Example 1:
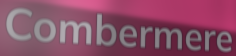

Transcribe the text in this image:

Combermere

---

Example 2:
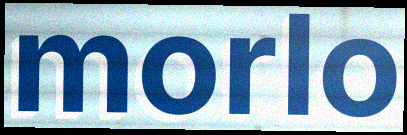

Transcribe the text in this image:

morlo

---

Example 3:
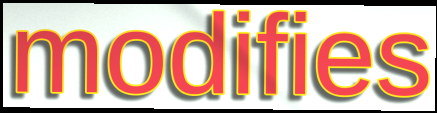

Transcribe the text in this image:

modifies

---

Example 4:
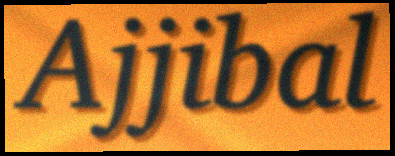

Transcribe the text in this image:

Ajjibal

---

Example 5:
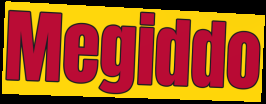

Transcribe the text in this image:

Megiddo